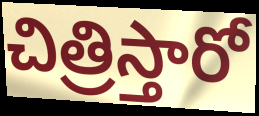
చిత్రిస్తారో